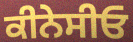
ਕੀਨੇਸੀਓ